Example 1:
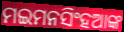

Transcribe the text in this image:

ମଇମନସିଂହଆଙ୍କ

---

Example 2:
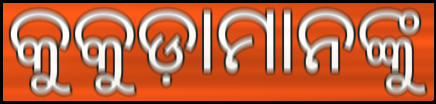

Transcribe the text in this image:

କୁକୁଡ଼ାମାନଙ୍କୁ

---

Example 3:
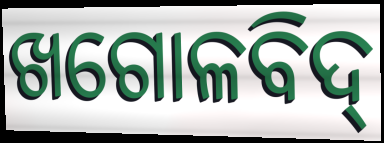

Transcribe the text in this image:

ଖଗୋଳବିଦ୍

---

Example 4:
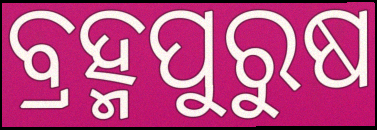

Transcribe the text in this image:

ବ୍ରହ୍ମପୁରୁଷ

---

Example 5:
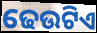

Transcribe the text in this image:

ଢେଉଟିଏ